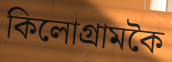
কিলোগ্ৰামকৈ